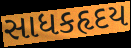
સાધકહૃદય